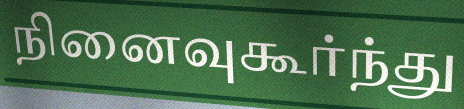
நினைவுகூர்ந்து